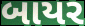
બાયર